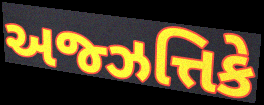
અજ્ઝત્તિકે